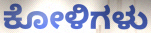
ಕೋಳಿಗಳು